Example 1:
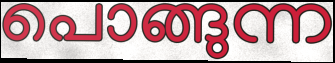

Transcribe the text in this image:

പൊങ്ങുന്ന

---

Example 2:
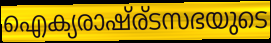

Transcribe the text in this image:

ഐക്യരാഷ്ര്ടസഭയുടെ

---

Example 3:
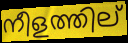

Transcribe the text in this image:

നീളത്തില്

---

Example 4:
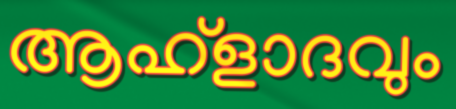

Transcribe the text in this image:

ആഹ്ളാദവും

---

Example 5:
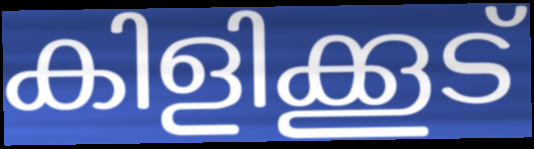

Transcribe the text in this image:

കിളിക്കൂട്